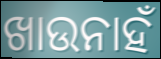
ଖାଉନାହଁ